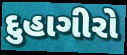
દુહાગીરો